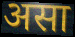
असा